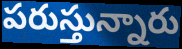
పరుస్తున్నారు